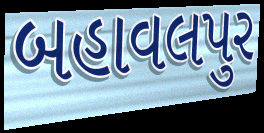
બહાવલપુર